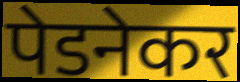
पेडनेकर